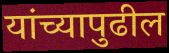
यांच्यापुढील